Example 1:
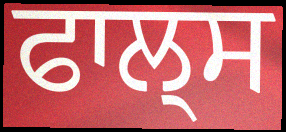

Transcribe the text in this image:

ਫਾਲ੍ਸ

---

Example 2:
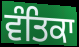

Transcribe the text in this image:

ਵੰਤਿਕਾ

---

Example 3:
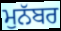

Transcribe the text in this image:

ਮੁਨੱਬਰ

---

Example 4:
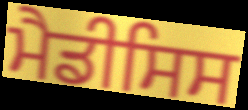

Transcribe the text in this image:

ਮੈਡੀਸਿਸ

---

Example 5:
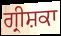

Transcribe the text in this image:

ਗ੍ਰੀਸ਼ਕਾ